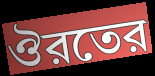
ঔরতের